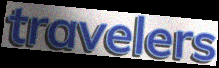
travelers